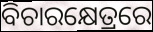
ବିଚାରକ୍ଷେତ୍ରରେ